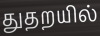
துதறயில்